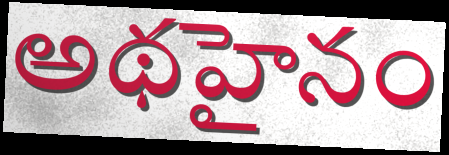
అథహైనం